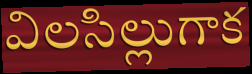
విలసిల్లుగాక